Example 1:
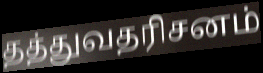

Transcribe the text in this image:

தத்துவதரிசனம்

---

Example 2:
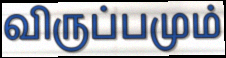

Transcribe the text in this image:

விருப்பமும்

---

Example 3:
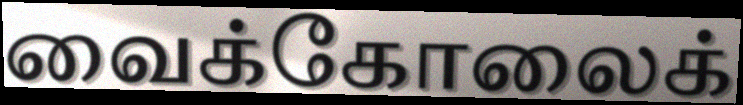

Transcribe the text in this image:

வைக்கோலைக்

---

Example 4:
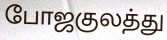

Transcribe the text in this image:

போஜகுலத்து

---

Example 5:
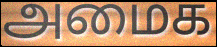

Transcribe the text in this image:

அமைக